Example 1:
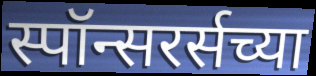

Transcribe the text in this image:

स्पॉन्सरर्सच्या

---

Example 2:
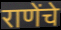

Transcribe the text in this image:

राणेंचे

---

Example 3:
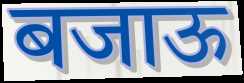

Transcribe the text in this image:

बजाऊ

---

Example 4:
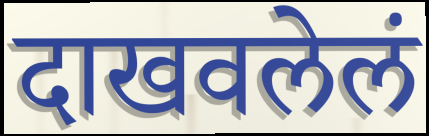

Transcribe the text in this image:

दाखवलेलं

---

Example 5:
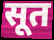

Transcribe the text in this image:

सूत